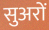
सुअरों